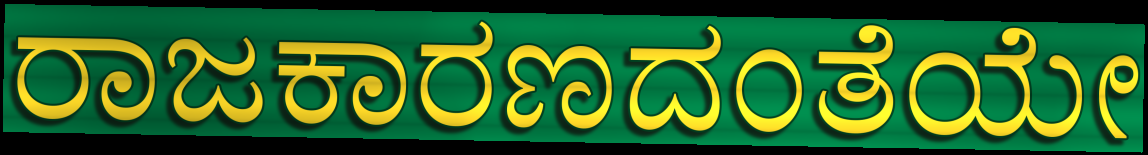
ರಾಜಕಾರಣದಂತೆಯೇ